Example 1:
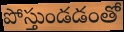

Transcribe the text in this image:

పోస్తుండడంతో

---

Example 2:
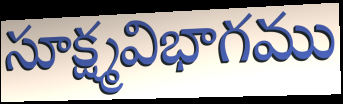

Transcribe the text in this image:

సూక్ష్మవిభాగము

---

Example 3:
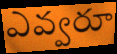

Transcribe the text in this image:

ఎవ్వరూ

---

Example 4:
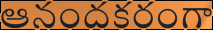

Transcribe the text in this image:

ఆనందకరంగా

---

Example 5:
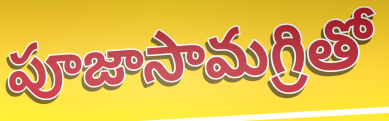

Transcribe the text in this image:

పూజాసామగ్రితో